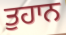
ਤੁਹਾਨ